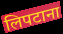
लिपटाना